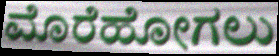
ಮೊರೆಹೋಗಲು